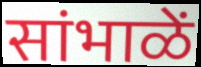
सांभाळें